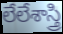
లేలేశాస్త్రి